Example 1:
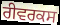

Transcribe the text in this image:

ਰੀਵਰਕਸ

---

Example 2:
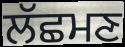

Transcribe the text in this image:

ਲੱਛਮਣ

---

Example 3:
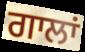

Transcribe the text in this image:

ਗਾਲਾਂ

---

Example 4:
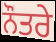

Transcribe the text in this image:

ਨੌਤਰੇ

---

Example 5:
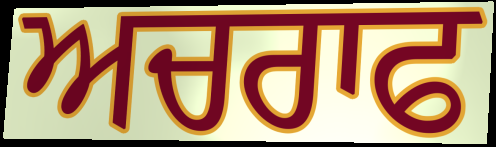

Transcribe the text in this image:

ਅਚਰਾਫ